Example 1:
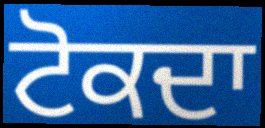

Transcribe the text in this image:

ਟੋਕਦਾ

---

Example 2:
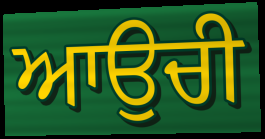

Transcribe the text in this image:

ਆਉਚੀ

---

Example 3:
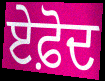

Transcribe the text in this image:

ਏਫ਼ੋਦ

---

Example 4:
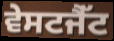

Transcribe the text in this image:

ਵੇਸਟਜੈੱਟ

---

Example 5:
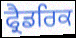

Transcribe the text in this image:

ਫ੍ਰੈਡਰਿਕ